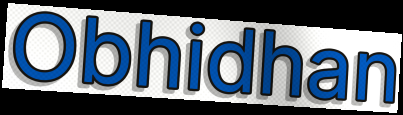
Obhidhan